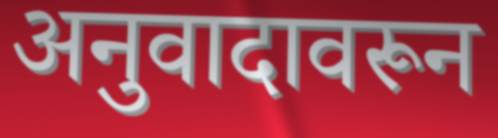
अनुवादावरून